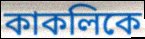
কাকলিকে